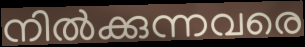
നിൽക്കുന്നവരെ